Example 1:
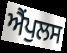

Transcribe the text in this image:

ਐਂਪੁਲਸ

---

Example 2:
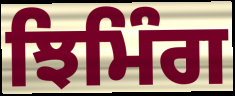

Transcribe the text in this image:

ਝਿਮਿੰਗ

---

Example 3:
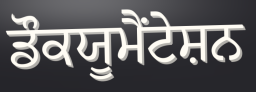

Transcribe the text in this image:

ਡੌਕਯੂਮੈਂਟੇਸ਼ਨ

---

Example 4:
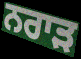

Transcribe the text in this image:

ਨਰਾੜ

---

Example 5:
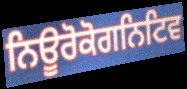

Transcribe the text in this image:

ਨਿਊਰੋਕੋਗਨਿਟਿਵ